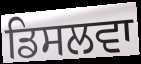
ਡਿਸਲਵਾ